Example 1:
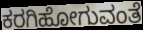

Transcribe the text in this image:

ಕರಗಿಹೋಗುವಂತೆ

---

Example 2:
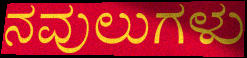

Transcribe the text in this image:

ನವುಲುಗಳು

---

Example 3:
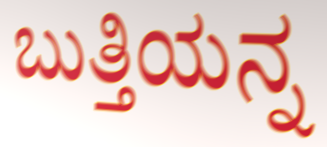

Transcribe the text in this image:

ಬುತ್ತಿಯನ್ನ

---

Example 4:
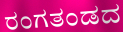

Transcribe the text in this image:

ರಂಗತಂಡದ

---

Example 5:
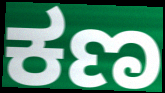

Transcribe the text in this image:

ಕಣ